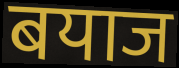
बयाज